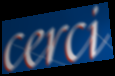
cerci